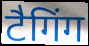
टैगिंग